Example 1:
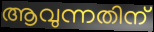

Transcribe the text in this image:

ആവുന്നതിന്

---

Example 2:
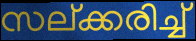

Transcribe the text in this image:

സല്ക്കരിച്ച്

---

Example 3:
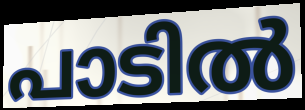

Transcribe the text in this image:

പാടിൽ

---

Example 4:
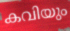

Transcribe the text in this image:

കവിയും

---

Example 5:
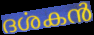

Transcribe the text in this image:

ദൎശകൻ